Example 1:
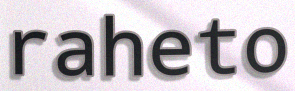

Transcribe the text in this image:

raheto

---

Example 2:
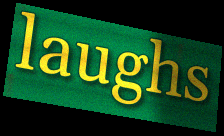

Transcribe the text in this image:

laughs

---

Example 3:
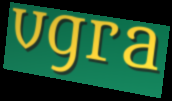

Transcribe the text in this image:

ugra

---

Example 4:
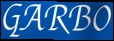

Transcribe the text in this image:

GARBO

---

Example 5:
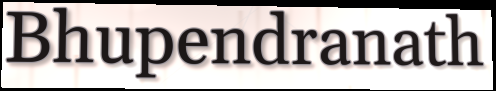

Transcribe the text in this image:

Bhupendranath